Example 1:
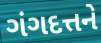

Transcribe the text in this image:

ગંગદત્તને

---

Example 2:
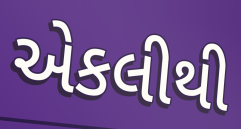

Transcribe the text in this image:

એકલીથી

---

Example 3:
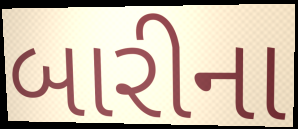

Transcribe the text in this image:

બારીના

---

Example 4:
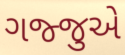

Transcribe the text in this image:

ગજ્જુએ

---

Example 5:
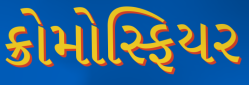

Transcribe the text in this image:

ક્રોમોસ્ફિયર